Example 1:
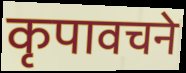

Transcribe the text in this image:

कृपावचने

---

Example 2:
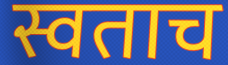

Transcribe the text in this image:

स्वताच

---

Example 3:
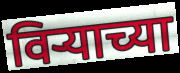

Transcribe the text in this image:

विर्‍याच्या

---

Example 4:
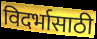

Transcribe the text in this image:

विदर्भासाठी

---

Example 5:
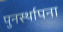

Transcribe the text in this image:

पुनर्स्थापना